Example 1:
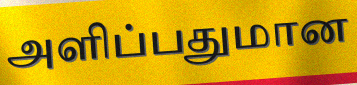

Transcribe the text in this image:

அளிப்பதுமான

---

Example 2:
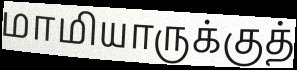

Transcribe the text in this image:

மாமியாருக்குத்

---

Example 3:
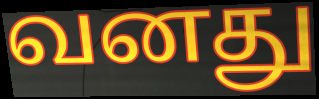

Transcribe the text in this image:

வனது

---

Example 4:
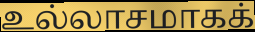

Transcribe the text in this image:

உல்லாசமாகக்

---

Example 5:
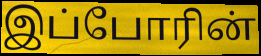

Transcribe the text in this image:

இப்போரின்